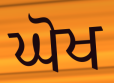
ਘੋਖ